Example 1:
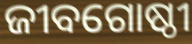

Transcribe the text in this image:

ଜୀବଗୋଷ୍ଠୀ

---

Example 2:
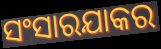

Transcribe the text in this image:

ସଂସାରଯାକର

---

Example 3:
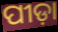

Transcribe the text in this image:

ପୀଡ଼ା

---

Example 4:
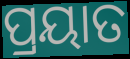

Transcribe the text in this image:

ପ୍ରୟାତ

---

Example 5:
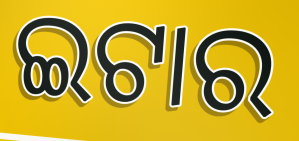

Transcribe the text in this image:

ଇଟାର